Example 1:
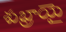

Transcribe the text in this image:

శుభ్రాయై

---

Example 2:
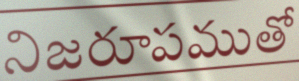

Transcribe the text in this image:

నిజరూపముతో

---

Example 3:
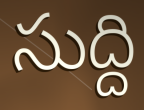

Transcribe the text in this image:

సుద్ది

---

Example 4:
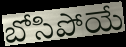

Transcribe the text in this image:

బోసిపోయే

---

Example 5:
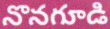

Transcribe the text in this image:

నొనగూడి